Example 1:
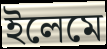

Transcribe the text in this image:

ইলেমে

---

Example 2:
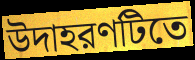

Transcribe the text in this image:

উদাহরণটিতে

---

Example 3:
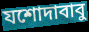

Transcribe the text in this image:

যশোদাবাবু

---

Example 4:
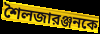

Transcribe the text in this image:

শৈলজারঞ্জনকে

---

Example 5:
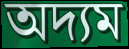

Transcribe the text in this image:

অদ্যম